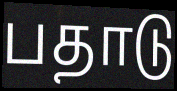
பதாடு